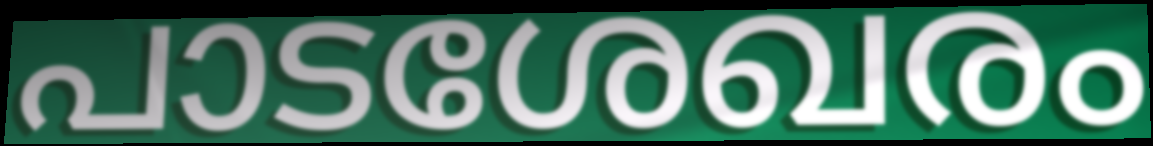
പാടശേഖരം